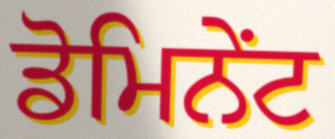
ਡੋਮਿਨੇਂਟ